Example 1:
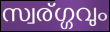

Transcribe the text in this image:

സ്വര്ഗ്ഗവും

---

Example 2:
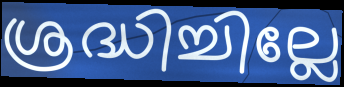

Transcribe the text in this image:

ശ്രദ്ധിച്ചില്ലേ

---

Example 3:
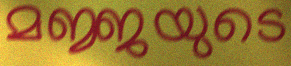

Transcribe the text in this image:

മജ്ജയുടെ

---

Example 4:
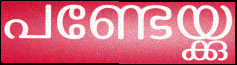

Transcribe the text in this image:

പണ്ടേയ്ക്കു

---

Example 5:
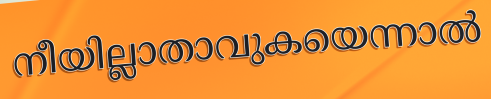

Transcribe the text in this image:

നീയില്ലാതാവുകയെന്നാൽ